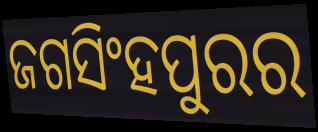
ଜଗସିଂହପୁରର